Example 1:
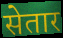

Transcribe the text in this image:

सेतार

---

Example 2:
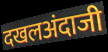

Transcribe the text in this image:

दखलअंदाजी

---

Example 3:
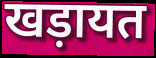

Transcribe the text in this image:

खड़ायत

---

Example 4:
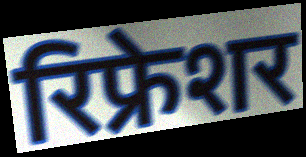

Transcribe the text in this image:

रिफ्रेशर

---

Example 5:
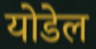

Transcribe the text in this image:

योडेल